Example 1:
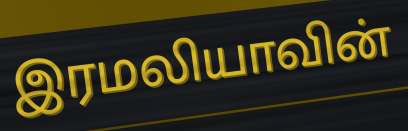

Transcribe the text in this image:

இரமலியாவின்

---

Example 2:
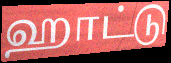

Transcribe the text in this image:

ஹாட்டு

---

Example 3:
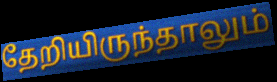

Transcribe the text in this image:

தேறியிருந்தாலும்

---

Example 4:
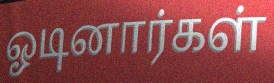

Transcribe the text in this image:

ஓடினார்கள்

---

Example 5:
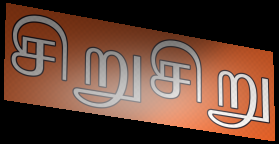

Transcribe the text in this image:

சிறுசிறு